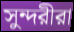
সুন্দরীরা